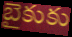
బైకుకు